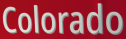
Colorado